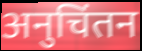
अनुचिंतन